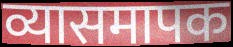
व्यासमापक